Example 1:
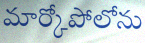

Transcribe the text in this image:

మార్కోపోలోను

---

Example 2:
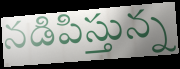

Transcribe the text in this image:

నడిపిస్తున్న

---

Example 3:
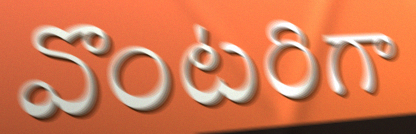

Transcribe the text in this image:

వొంటరిగా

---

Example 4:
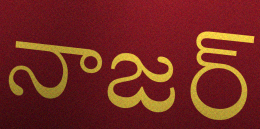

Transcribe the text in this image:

నాజర్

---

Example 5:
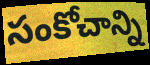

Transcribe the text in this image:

సంకోచాన్ని